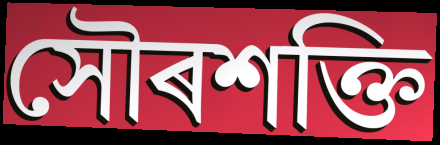
সৌৰশক্তি